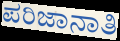
ಪರಿಜಾನಾತಿ